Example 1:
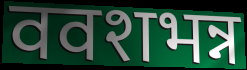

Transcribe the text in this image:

ववशभन्न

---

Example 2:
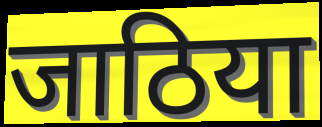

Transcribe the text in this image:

जाठिया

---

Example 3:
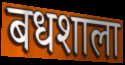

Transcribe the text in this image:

बधशाला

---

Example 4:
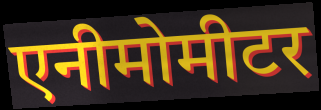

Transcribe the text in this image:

एनीमोमीटर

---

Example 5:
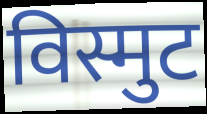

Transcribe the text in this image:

विस्मुट